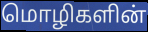
மொழிகளின்